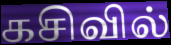
கசிவில்